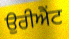
ਉਰੀਐਂਟ